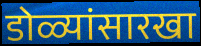
डोळ्यांसारखा